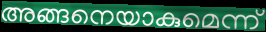
അങ്ങനെയാകുമെന്ന്